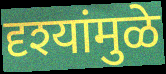
दृश्यांमुळे